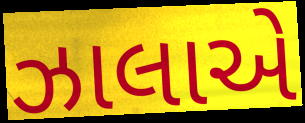
ઝાલાએ